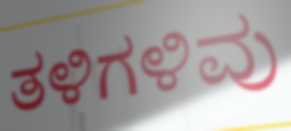
ತಳಿಗಳಿವು